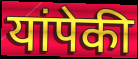
यांपेकी